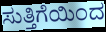
ಸುತ್ತಿಗೆಯಿಂದ